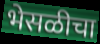
भेसळीचा